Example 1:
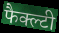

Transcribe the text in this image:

फैक्ल्टी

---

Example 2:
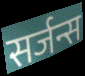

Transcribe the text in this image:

सर्जन्स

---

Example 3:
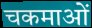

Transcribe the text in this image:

चकमाओं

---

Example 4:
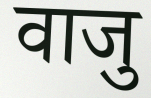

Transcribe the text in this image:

वाजु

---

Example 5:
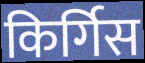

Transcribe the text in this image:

किर्गिस